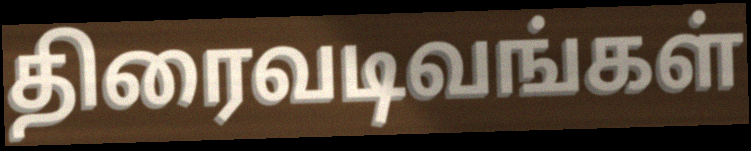
திரைவடிவங்கள்